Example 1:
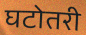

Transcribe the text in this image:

घटोतरी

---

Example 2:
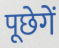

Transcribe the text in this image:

पूछेगें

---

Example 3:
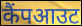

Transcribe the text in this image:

कैंपआउट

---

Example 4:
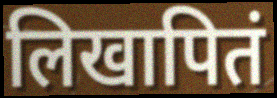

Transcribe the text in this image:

लिखापितं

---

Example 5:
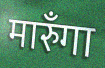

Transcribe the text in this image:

मारुँगा